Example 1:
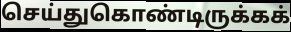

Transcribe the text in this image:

செய்துகொண்டிருக்கக்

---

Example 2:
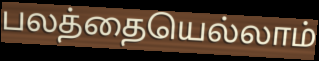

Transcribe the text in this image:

பலத்தையெல்லாம்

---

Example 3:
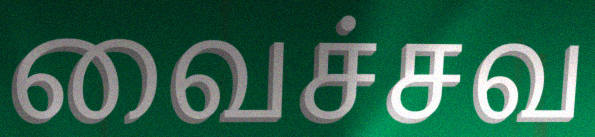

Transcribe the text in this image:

வைச்சவ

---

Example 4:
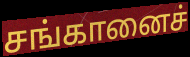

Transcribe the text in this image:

சங்கானைச்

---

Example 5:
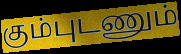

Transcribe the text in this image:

கும்புடணும்